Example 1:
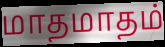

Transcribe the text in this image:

மாதமாதம்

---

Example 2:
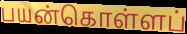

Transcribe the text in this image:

பயன்கொள்ளப்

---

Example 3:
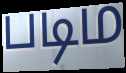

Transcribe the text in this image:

படிம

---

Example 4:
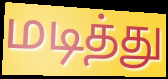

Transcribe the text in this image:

மடித்து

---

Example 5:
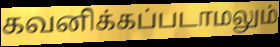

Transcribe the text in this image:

கவனிக்கப்படாமலும்